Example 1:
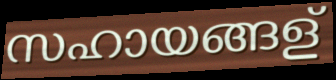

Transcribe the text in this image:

സഹായങ്ങള്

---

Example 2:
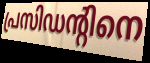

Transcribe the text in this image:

പ്രസിഡന്റിനെ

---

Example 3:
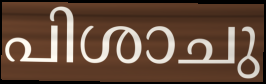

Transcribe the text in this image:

പിശാചു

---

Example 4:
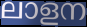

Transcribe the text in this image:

ലാളന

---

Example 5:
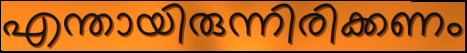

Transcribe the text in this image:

എന്തായിരുന്നിരിക്കണം